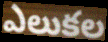
ఎలుకల